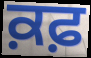
ਕ਼ਫ਼